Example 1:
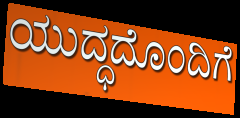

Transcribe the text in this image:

ಯುದ್ಧದೊಂದಿಗೆ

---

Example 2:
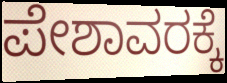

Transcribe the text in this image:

ಪೇಶಾವರಕ್ಕೆ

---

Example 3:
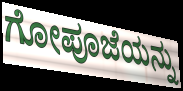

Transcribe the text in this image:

ಗೋಪೂಜೆಯನ್ನು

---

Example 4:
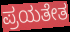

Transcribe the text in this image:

ಪ್ರಯತೇತ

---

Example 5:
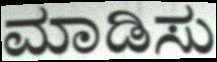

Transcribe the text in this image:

ಮಾಡಿಸು